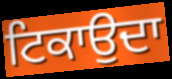
ਟਿਕਾਉਦਾ